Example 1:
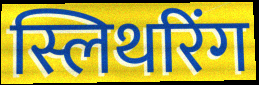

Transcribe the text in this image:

स्लिथरिंग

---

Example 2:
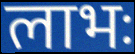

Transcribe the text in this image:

लाभः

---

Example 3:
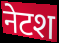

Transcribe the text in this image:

नेटश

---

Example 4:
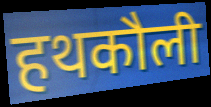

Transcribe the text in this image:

हथकौली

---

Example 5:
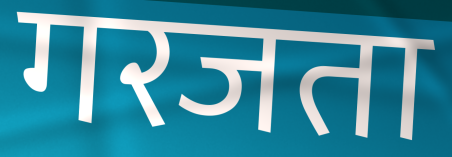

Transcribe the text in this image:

गरजता